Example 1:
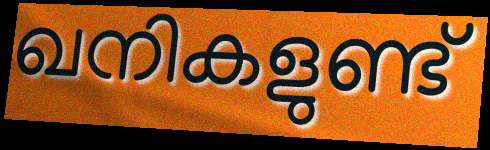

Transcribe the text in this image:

ഖനികളുണ്ട്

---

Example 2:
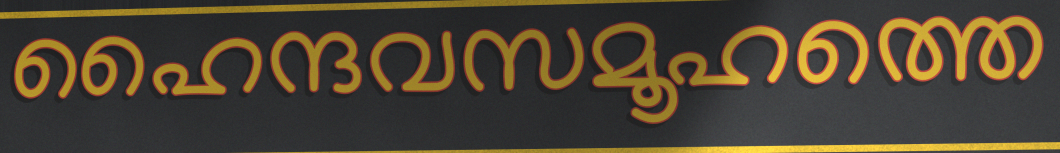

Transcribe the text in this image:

ഹൈന്ദവസമൂഹത്തെ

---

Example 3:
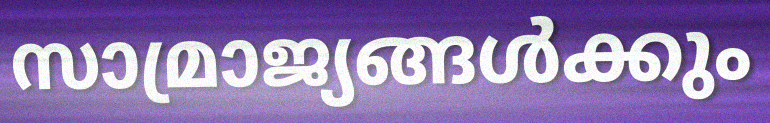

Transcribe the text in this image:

സാമ്രാജ്യങ്ങൾക്കും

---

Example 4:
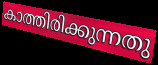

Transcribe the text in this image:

കാത്തിരിക്കുന്നതു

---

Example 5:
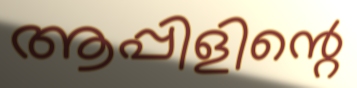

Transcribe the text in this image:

ആപ്പിളിന്റെ